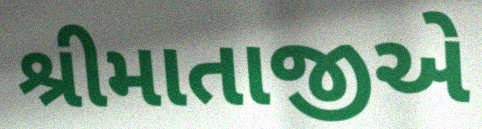
શ્રીમાતાજીએ